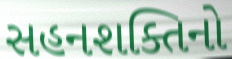
સહનશક્તિનો